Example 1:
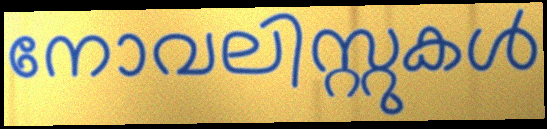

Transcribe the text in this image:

നോവലിസ്റ്റുകൾ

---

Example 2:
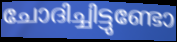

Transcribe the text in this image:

ചോദിച്ചിട്ടുണ്ടോ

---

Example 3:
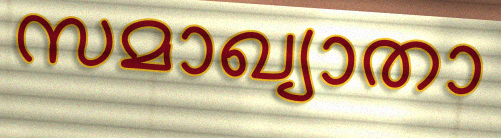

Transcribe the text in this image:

സമാഖ്യാതാ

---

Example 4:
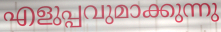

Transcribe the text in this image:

എളുപ്പവുമാക്കുന്നു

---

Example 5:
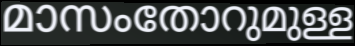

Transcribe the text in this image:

മാസംതോറുമുള്ള